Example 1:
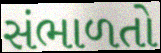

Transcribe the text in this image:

સંભાળતો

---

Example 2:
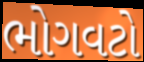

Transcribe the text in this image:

ભોગવટો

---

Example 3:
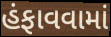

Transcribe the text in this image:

હંફાવવામાં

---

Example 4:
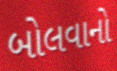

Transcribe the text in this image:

બોલવાનો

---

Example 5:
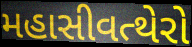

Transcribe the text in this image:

મહાસીવત્થેરો